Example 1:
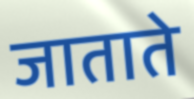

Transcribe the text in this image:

जाताते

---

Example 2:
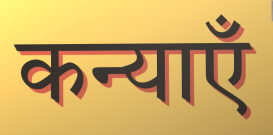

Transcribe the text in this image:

कन्याएँ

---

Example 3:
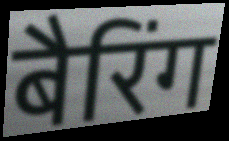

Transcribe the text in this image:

बैरिंग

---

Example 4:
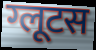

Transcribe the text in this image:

ग्लूटस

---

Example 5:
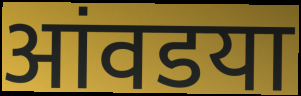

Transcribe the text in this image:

आंवडया